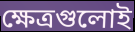
ক্ষেত্রগুলোই